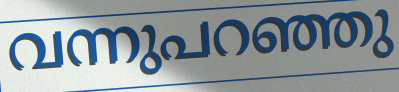
വന്നുപറഞ്ഞു